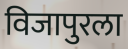
विजापुरला